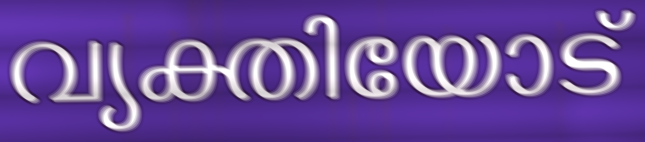
വ്യക്തിയോട്